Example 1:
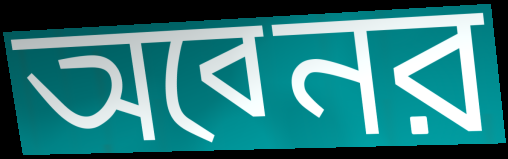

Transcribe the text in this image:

অব্নের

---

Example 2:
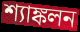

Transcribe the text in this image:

শ্যাঙ্কলন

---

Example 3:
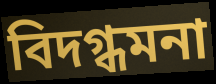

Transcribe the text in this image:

বিদগ্ধমনা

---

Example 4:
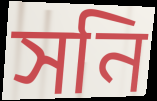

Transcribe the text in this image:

সনি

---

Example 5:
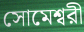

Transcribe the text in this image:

সোমেশ্বরী